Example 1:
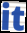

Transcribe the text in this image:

it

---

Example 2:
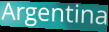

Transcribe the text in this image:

Argentina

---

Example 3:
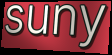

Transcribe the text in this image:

suny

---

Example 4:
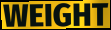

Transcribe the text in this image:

WEIGHT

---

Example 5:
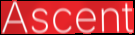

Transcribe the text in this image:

Ascent